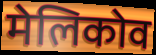
मेलिकोव